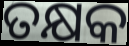
ତକ୍ଷକ